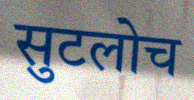
सुटलोच